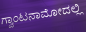
ಗ್ವಾಂಟನಾಮೋದಲ್ಲಿ